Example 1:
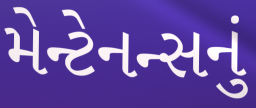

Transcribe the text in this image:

મેન્ટેનન્સનું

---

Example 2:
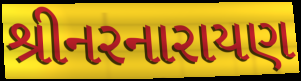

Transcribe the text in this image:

શ્રીનરનારાયણ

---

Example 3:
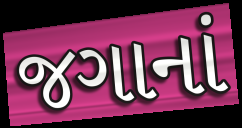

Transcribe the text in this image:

જગાનાં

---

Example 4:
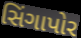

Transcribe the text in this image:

સિંગાપોર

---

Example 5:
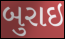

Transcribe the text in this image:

બુરાઇ